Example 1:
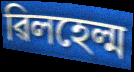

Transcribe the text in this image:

ৱিলহেল্ম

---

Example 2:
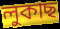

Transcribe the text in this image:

লুকাছ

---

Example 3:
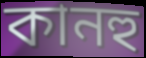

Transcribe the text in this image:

কানহু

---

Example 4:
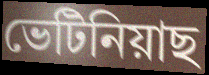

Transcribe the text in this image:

ভেটিনিয়াছ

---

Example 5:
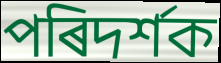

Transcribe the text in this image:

পৰিদৰ্শক